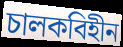
চালকবিহীন